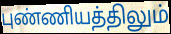
புண்ணியத்திலும்